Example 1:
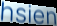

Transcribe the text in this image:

hsien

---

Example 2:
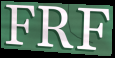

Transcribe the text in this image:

FRF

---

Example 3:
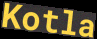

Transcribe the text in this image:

Kotla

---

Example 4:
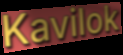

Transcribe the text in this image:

Kavilok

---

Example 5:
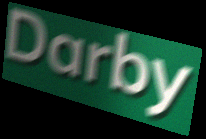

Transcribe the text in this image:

Darby